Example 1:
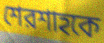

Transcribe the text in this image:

শেরশাহকে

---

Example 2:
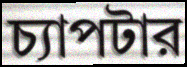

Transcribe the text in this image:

চ্যাপটার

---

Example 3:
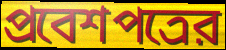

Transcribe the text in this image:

প্রবেশপত্রের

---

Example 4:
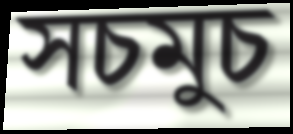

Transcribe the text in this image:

সচমুচ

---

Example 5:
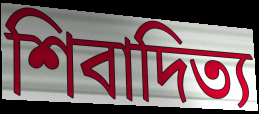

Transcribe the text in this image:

শিবাদিত্য